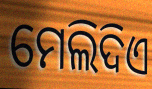
ମେଲିଦିଏ